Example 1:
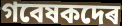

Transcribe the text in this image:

গবেষকদেৰ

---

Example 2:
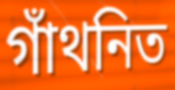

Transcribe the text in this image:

গাঁথনিত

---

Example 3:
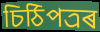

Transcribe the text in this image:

চিঠিপত্ৰৰ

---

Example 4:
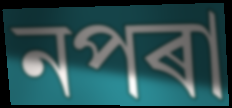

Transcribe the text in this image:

নপৰা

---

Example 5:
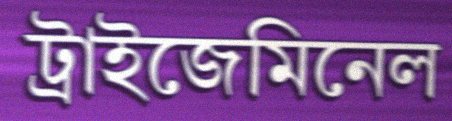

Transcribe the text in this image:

ট্ৰাইজেমিনেল